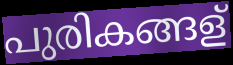
പുരികങ്ങള്